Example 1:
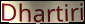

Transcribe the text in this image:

Dhartiri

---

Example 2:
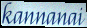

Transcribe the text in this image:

kannanai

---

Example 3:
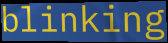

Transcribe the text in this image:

blinking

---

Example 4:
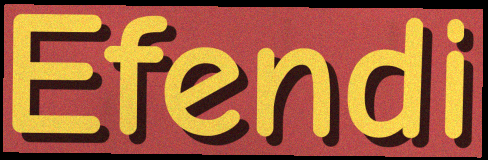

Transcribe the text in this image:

Efendi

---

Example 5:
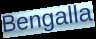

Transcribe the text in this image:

Bengalla